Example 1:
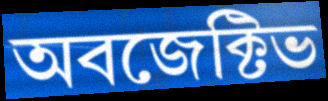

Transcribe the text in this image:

অবজেক্টিভ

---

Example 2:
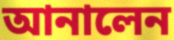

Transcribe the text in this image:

আনালেন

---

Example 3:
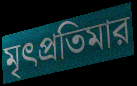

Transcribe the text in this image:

মৃৎপ্রতিমার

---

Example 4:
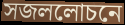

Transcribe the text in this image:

সজললোচনে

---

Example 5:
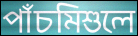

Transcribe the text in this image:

পাঁচমিশুলে